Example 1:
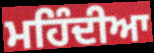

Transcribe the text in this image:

ਮਹਿੰਦੀਆ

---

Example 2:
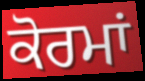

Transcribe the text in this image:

ਕੋਰਮਾਂ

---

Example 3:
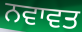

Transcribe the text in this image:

ਨਵਾਵਤ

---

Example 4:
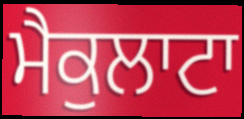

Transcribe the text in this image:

ਮੈਕੁਲਾਟਾ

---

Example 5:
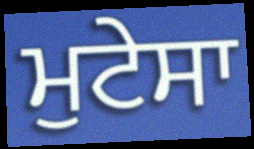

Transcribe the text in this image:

ਮੁਟੇਸਾ